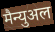
मैन्युअल